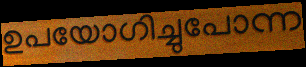
ഉപയോഗിച്ചുപോന്ന